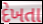
દેખતા